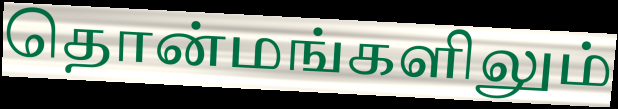
தொன்மங்களிலும்